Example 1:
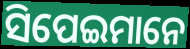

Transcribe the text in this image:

ସିପେଇମାନେ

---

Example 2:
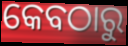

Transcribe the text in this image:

କେବଠାରୁ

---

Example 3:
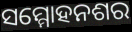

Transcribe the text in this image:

ସମ୍ମୋହନଶର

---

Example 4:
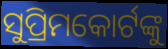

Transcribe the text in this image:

ସୁପ୍ରିମକୋର୍ଟଙ୍କୁ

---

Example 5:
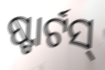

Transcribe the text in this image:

ଷ୍ଟାର୍ଟସ୍